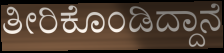
ತೀರಿಕೊಂಡಿದ್ದಾನೆ